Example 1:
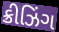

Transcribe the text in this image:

ક્રીઝિંગ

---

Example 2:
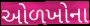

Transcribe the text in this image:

ઓળખોના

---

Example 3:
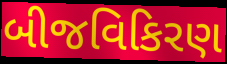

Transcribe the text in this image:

બીજવિકિરણ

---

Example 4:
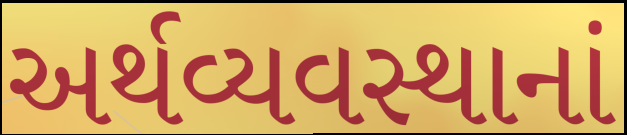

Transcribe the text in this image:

અર્થવ્યવસ્થાનાં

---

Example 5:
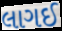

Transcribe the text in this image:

લાગઈ